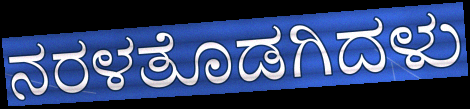
ನರಳತೊಡಗಿದಳು